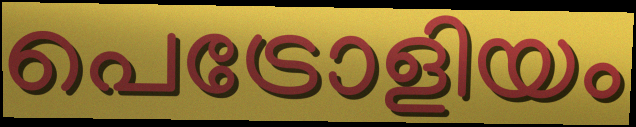
പെട്രോളിയം